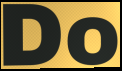
Do